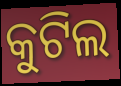
କୁଟିଲ